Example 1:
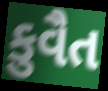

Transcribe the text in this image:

કુવૈત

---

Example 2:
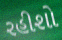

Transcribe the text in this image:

રહીશો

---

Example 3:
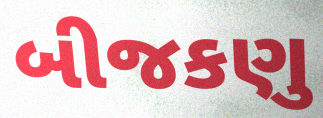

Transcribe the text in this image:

બીજકણુ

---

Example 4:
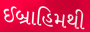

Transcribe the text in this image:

ઈબ્રાહિમથી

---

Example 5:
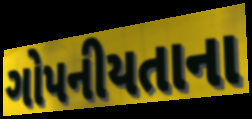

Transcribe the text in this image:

ગોપનીયતાના